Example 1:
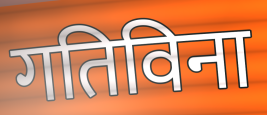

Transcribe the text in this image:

गतिविना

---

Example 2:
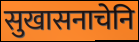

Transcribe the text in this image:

सुखासनाचेनि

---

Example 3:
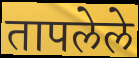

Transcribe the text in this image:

तापलेले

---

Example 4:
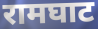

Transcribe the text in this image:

रामघाट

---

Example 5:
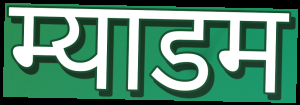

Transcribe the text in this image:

म्याडम